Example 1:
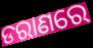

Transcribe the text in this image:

ଡରାଣରେ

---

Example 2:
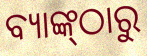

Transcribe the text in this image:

ବ୍ୟାଙ୍କ୍‌ଠାରୁ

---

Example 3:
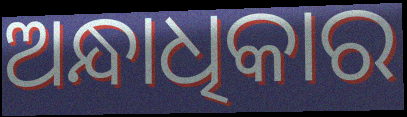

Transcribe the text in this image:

ଅନ୍ଧାଧିକାର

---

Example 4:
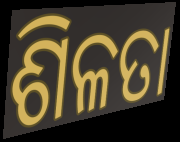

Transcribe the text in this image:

ଶିଳତା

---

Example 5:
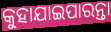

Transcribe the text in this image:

କୁହାଯାଇପାରନ୍ତା